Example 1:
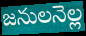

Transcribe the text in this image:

జనులనెల్ల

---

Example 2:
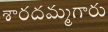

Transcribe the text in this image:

శారదమ్మగారు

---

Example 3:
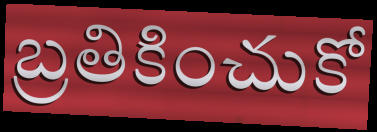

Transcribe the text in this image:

బ్రతికించుకో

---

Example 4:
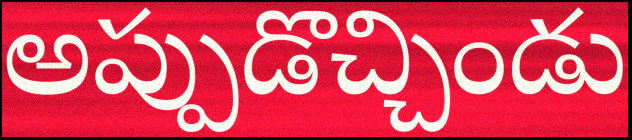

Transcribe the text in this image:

అప్పుడొచ్చిండు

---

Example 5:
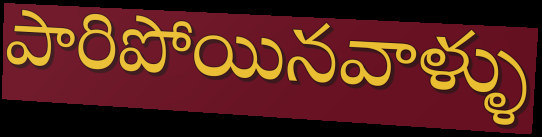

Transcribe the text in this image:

పారిపోయినవాళ్ళు